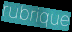
rubrique